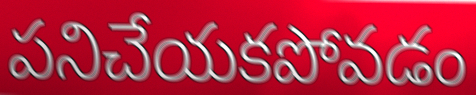
పనిచేయకపోవడం